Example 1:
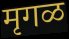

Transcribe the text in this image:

मृगळ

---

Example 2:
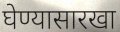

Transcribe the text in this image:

घेण्यासारखा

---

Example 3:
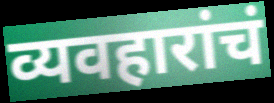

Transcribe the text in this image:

व्यवहारांचं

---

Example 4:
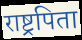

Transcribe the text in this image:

राष्ट्रपिता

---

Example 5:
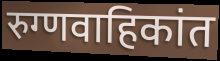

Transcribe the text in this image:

रुग्णवाहिकांत